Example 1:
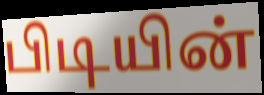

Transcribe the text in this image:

பிடியின்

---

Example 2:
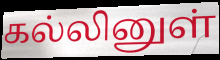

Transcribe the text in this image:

கல்லினுள்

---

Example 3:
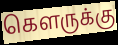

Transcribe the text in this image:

கௌருக்கு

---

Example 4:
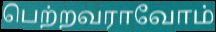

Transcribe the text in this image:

பெற்றவராவோம்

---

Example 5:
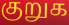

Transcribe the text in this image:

குறுக